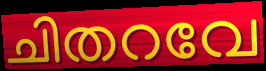
ചിതറവേ